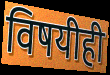
विषयीही